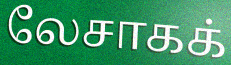
லேசாகக்